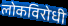
लोकविरोधी